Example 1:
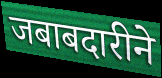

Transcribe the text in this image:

जबाबदारीने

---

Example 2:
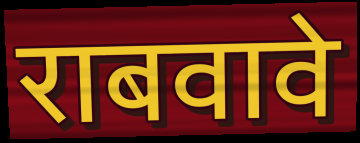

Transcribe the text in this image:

राबवावे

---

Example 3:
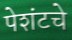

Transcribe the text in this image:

पेशंटचे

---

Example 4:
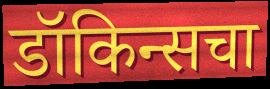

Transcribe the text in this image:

डॉकिन्सचा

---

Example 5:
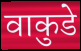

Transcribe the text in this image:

वाकुडे